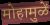
मोहामुळें